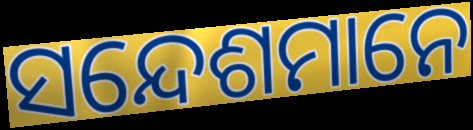
ସନ୍ଦେଶମାନେ